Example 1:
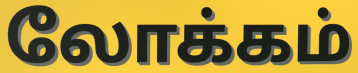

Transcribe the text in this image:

லோக்கம்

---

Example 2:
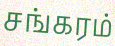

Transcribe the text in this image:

சங்கரம்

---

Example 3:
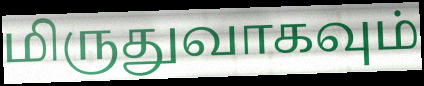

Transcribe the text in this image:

மிருதுவாகவும்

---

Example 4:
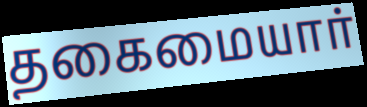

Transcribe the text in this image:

தகைமையார்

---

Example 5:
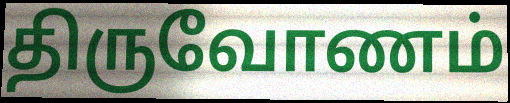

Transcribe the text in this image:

திருவோணம்